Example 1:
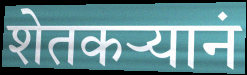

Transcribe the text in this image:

शेतकर्‍यानं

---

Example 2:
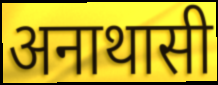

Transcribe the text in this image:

अनाथासी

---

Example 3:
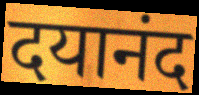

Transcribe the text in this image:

दयानंद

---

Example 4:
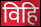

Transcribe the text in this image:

विहि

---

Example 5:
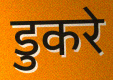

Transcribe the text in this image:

डुकरे